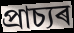
প্ৰাচ্যৰ